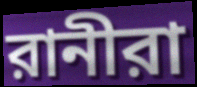
রানীরা